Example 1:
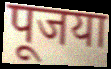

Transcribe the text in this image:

पूजया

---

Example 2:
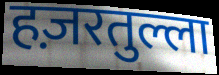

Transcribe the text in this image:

हज़रतुल्ला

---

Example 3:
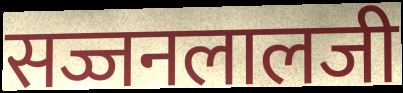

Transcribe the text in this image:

सज्जनलालजी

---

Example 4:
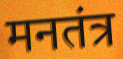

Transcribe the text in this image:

मनतंत्र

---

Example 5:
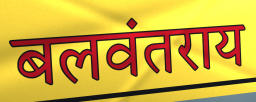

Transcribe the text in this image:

बलवंतराय